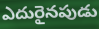
ఎదురైనపుడు